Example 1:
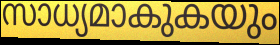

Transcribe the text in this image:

സാധ്യമാകുകയും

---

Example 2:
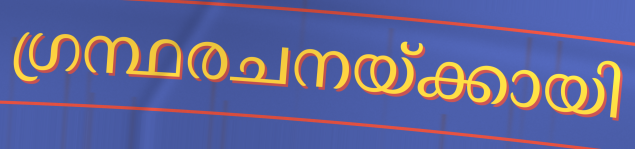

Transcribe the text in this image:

ഗ്രന്ഥരചനയ്ക്കായി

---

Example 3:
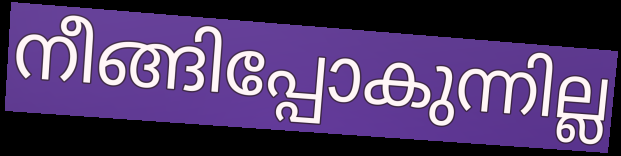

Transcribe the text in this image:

നീങ്ങിപ്പോകുന്നില്ല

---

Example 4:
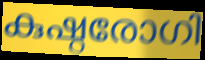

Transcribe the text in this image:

കുഷ്ഠരോഗി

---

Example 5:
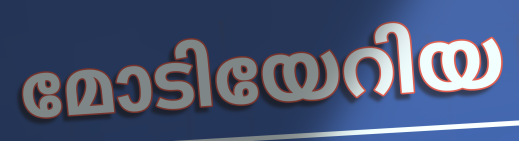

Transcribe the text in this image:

മോടിയേറിയ